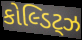
કોલ્ડિટ્ઝ